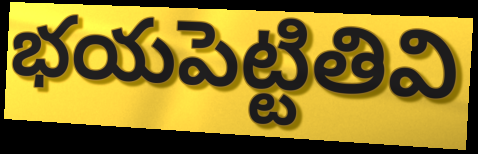
భయపెట్టితివి